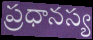
ప్రధానస్య